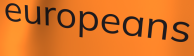
europeans